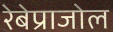
रेबेप्राजोल